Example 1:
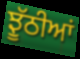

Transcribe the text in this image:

ਝੂੱਠੀਆਂ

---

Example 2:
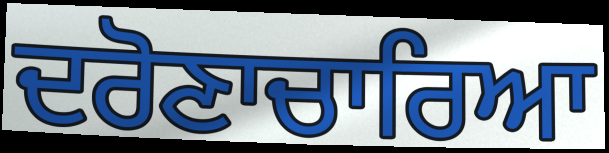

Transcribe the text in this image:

ਦਰੋਣਾਚਾਰਿਆ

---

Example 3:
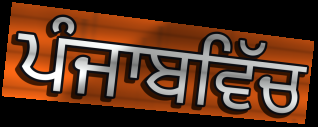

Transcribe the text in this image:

ਪੰਜਾਬਵਿੱਚ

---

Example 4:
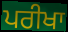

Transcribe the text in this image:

ਪਰੀਖਾ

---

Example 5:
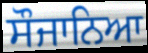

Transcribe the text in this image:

ਸੌਜਾਨਿਆ